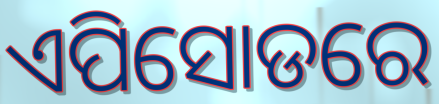
ଏପିସୋଡରେ